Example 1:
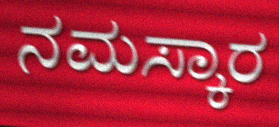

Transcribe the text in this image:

ನಮಸ್ಕಾರ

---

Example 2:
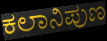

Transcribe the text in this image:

ಕಲಾನಿಪುಣ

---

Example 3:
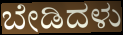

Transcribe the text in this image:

ಬೇಡಿದಳು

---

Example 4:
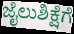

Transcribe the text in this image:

ಜೈಲುಶಿಕ್ಷೆಗೆ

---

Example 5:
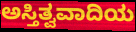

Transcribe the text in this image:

ಅಸ್ತಿತ್ವವಾದಿಯ